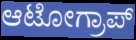
ಆಟೋಗ್ರಾಪ್